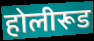
होलीरूड